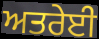
ਅਤਰੇਈ